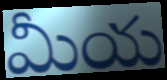
మీయ